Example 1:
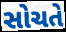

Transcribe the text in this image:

સોચતે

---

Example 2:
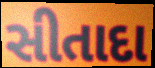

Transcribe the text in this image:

સીતાદા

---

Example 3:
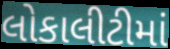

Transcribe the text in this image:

લોકાલીટીમાં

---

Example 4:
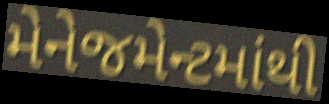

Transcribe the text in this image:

મેનેજમેન્ટમાંથી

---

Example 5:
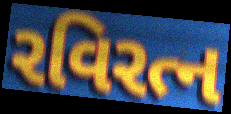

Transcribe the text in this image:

રવિરત્ન